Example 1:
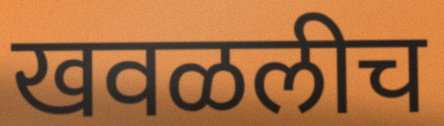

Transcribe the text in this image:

खवळलीच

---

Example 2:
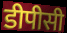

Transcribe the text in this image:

डीपीसी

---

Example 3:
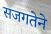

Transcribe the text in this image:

सजगतेने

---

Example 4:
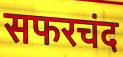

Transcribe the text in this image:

सफरचंद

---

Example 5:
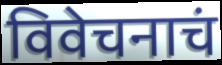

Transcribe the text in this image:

विवेचनाचं